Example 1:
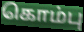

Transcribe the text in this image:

கொம்பு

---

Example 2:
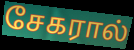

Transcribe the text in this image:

சேகரால்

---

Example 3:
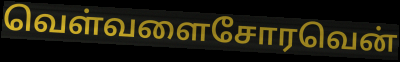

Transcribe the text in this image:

வெள்வளைசோரவென்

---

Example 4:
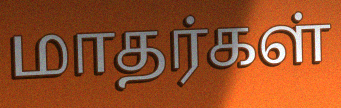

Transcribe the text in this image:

மாதர்கள்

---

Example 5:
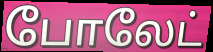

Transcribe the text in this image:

போலேட்